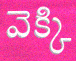
వెక్కి